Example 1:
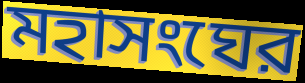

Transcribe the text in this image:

মহাসংঘের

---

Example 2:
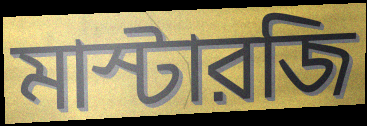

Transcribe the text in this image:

মাস্টারজি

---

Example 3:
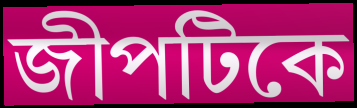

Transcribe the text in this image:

জীপটিকে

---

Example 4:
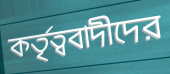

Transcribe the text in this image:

কর্তৃত্ববাদীদের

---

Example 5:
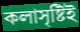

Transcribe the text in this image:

কলাসৃষ্টিই